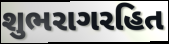
શુભરાગરહિત